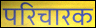
परिचारक